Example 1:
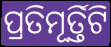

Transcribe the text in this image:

ପ୍ରତିମୂର୍ତ୍ତିଟି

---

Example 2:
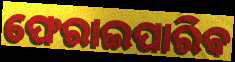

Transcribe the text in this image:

ଫେରାଇପାରିବ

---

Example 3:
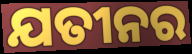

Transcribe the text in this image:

ଯତୀନର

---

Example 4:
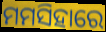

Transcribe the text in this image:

ମମସିହାରେ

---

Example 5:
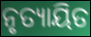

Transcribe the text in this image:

ନୃତ୍ୟାୟିତ